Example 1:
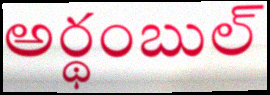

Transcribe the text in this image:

అర్థంబుల్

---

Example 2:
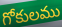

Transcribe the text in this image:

గోకులము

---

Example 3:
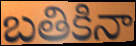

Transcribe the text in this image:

బతికినా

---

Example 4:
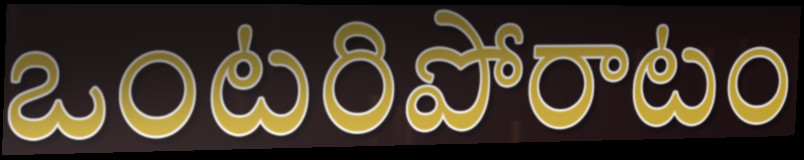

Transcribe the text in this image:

ఒంటరిపోరాటం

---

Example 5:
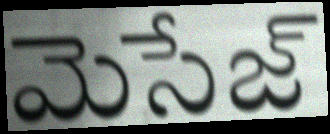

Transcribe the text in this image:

మెసేజ్